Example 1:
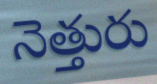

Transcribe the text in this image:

నెత్తురు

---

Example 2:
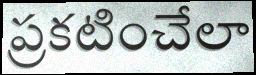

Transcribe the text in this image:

ప్రకటించేలా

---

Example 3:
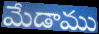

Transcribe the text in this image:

మేడాము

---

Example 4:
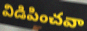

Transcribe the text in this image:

విడిపించవా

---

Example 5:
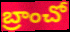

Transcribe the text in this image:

బ్రాంచో